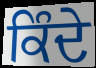
ਕਿੰਦੇ